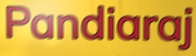
Pandiaraj